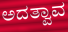
ಅದತ್ವಾವ